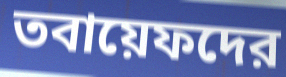
তবায়েফদের